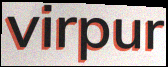
virpur